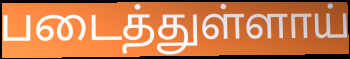
படைத்துள்ளாய்